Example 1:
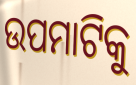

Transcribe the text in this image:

ଉପମାଟିକୁ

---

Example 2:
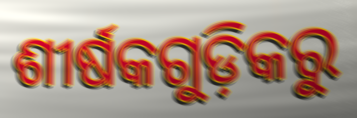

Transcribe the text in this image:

ଶୀର୍ଷକଗୁଡ଼ିକରୁ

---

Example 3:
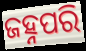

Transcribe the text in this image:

ଜହ୍ନପରି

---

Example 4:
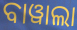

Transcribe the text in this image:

ବାୱାଲା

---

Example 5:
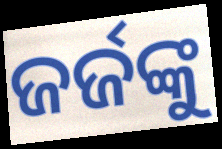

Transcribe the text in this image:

ଜର୍ଜଙ୍କୁ